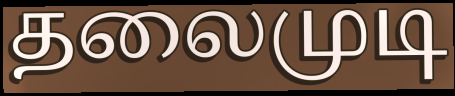
தலைமுடி